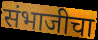
संभाजीचा